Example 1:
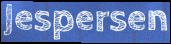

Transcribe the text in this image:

Jespersen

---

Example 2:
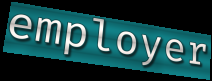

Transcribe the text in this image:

employer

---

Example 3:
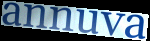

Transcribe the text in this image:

annuva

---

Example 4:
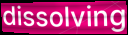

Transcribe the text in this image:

dissolving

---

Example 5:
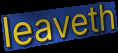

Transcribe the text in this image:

leaveth